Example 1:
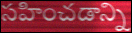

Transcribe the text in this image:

సహించడాన్ని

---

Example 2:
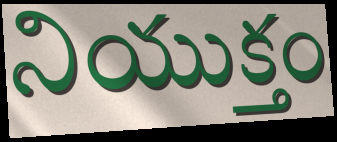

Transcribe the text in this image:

నియుక్తం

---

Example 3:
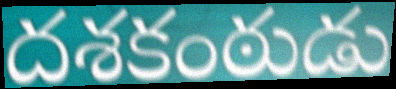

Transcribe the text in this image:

దశకంఠుడు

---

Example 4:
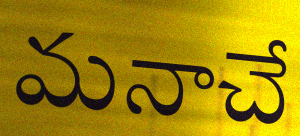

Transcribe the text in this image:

మనాచే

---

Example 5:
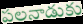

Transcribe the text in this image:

పలనాడుకు